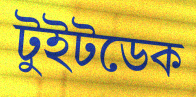
টুইটডেক